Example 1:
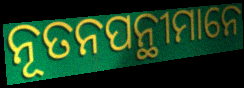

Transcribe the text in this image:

ନୂତନପନ୍ଥୀମାନେ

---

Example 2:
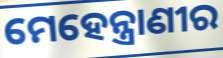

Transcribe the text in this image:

ମେହେନ୍ତ୍ରାଣୀର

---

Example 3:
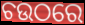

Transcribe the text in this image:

ଚଉଠରେ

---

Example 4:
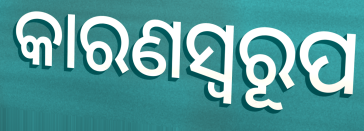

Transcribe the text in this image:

କାରଣସ୍ୱରୂପ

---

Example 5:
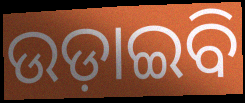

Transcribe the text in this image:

ଉଡ଼ାଇବି